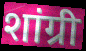
शांग्री